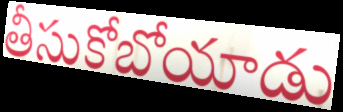
తీసుకోబోయాడు